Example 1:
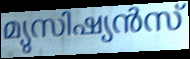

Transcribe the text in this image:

മ്യുസിഷ്യൻസ്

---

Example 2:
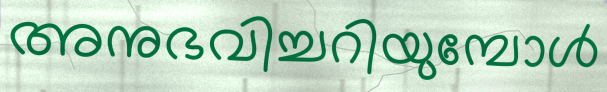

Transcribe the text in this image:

അനുഭവിച്ചറിയുമ്പോൾ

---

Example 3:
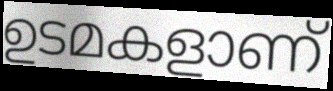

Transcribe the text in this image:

ഉടമകളാണ്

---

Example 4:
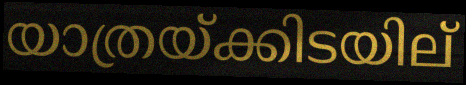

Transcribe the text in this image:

യാത്രയ്ക്കിടയില്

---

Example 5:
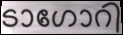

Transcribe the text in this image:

ടാഗോറി